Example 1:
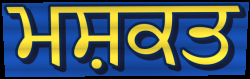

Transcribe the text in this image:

ਮਸ਼ਕਤ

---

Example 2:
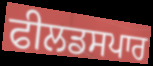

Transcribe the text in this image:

ਫੀਲਡਸਪਾਰ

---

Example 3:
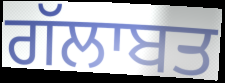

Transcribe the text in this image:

ਗੱਲਾਬਤ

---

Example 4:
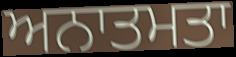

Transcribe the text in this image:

ਅਨਾਤਮਤਾ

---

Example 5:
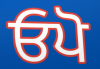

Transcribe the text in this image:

ਓਪੋ